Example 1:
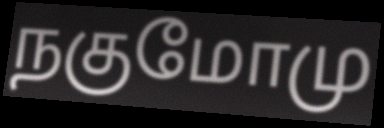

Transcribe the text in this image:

நகுமோமு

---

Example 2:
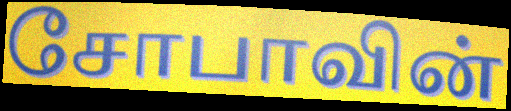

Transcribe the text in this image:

சோபாவின்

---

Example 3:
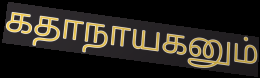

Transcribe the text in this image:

கதாநாயகனும்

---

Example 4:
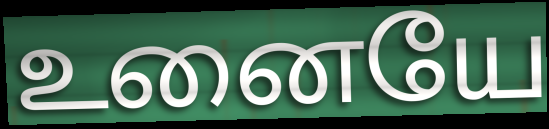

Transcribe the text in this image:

உனையே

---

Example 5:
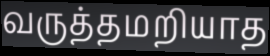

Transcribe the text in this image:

வருத்தமறியாத